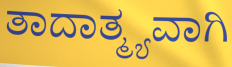
ತಾದಾತ್ಮ್ಯವಾಗಿ